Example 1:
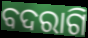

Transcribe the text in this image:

ବଦରାଗି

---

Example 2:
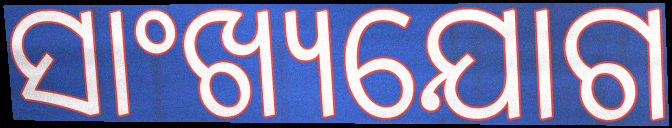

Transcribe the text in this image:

ସାଂଖ୍ୟଯୋଗ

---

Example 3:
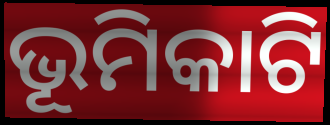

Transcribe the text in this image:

ଭୂମିକାଟି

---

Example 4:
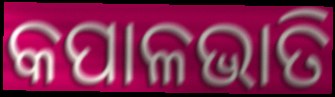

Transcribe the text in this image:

କପାଳଭାତି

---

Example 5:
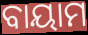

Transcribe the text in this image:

ବାୟାମ